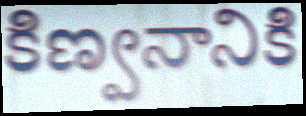
కిణ్వనానికి